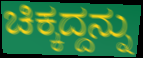
ಚಿಕ್ಕದ್ದನ್ನು